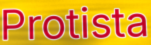
Protista